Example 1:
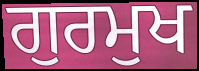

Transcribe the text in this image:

ਗੁਰਮੁਖ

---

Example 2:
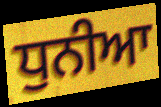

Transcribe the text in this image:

ਧੁਨੀਆ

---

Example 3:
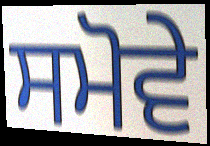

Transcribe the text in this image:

ਸਮੋਵੇ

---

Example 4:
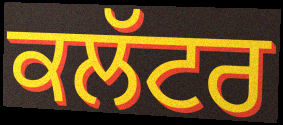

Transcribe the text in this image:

ਕਲੱਟਰ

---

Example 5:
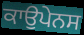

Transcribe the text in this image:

ਕਾਉਪੇਨਸ